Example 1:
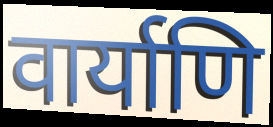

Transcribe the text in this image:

वार्याणि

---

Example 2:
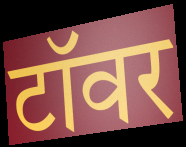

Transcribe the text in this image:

टॉवर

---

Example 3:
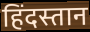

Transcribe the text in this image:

हिंदस्तान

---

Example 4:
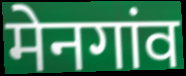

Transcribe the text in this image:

मेनगांव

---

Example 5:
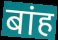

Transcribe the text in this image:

बांह